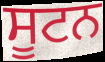
ਸੂਟਨ